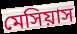
মেসিয়াস